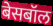
बेसबॉल